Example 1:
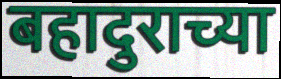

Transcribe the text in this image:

बहादुराच्या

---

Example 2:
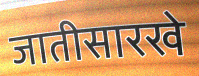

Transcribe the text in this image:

जातीसारखे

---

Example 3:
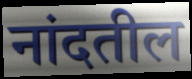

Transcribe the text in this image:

नांदतील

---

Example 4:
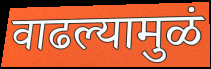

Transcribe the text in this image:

वाढल्यामुळं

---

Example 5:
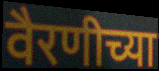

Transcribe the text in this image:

वैरणीच्या